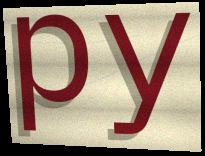
py